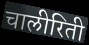
चालीरिती